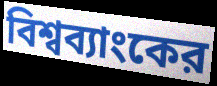
বিশ্বব্যাংকের